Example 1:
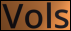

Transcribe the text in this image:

Vols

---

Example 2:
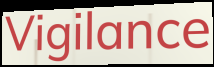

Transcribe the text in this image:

Vigilance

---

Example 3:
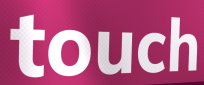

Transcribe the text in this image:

touch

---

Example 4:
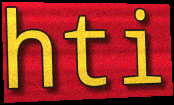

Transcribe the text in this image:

hti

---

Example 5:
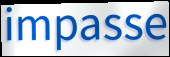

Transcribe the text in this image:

impasse